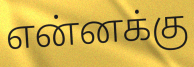
என்னக்கு